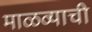
माळव्याची